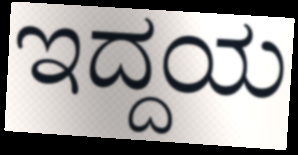
ಇದ್ದಯ